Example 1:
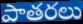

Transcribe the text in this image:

పాతరలు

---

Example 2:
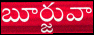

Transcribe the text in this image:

బూర్జువా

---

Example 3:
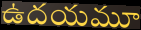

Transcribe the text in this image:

ఉదయమూ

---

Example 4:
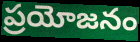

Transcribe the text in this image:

ప్రయోజనం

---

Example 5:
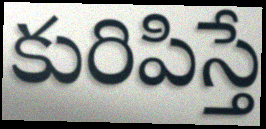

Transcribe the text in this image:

కురిపిస్తే